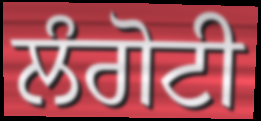
ਲੰਗੋਟੀ